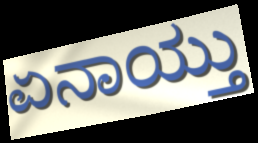
ಏನಾಯ್ತು